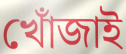
খোঁজাই